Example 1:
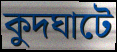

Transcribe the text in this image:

কুদঘাটে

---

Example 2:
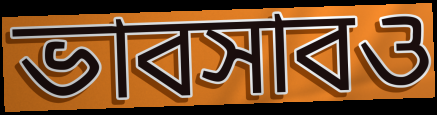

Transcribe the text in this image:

ভাবসাবও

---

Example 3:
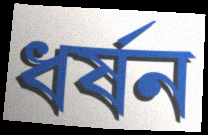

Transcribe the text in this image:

ধর্ষন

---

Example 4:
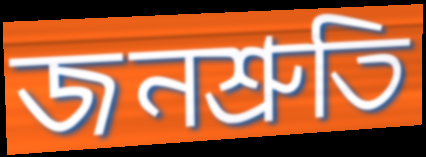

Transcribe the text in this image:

জনশ্রুতি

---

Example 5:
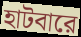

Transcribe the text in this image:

হাটবারে